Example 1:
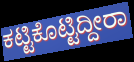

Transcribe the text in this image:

ಕಟ್ಟಿಕೊಟ್ಟಿದ್ದೀರಾ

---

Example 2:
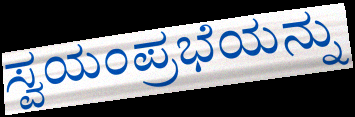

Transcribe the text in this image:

ಸ್ವಯಂಪ್ರಭೆಯನ್ನು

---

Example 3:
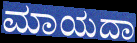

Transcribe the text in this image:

ಮಾಯದಾ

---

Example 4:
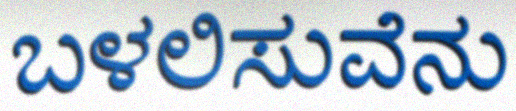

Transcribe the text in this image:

ಬಳಲಿಸುವೆನು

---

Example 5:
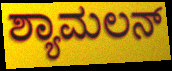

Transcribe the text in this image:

ಶ್ಯಾಮಲನ್